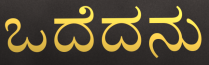
ಒದೆದನು